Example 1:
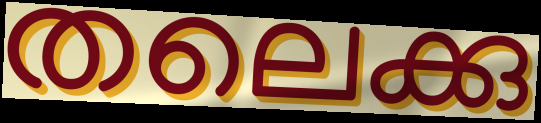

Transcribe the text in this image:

തലെക്കു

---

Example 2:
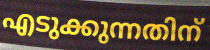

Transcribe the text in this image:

എടുക്കുന്നതിന്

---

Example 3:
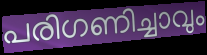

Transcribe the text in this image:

പരിഗണിച്ചാവും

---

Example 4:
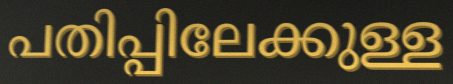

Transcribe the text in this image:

പതിപ്പിലേക്കുള്ള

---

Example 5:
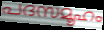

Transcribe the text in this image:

പദസമൂഹം